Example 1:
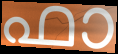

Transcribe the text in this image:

ഫാ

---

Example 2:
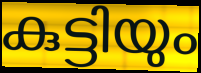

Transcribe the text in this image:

കുട്ടിയും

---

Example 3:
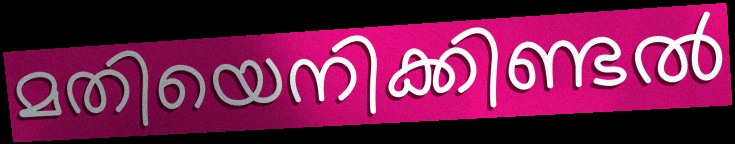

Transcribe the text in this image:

മതിയെനിക്കിണ്ടൽ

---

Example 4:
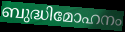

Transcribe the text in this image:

ബുദ്ധിമോഹനം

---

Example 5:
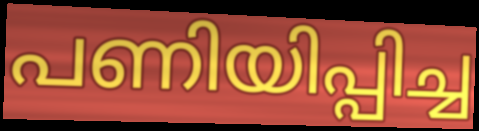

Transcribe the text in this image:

പണിയിപ്പിച്ച